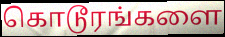
கொடூரங்களை